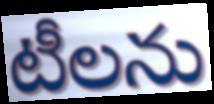
టీలను